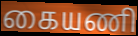
கையணி